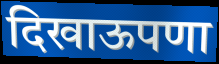
दिखाऊपणा